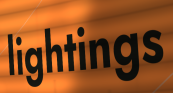
lightings